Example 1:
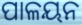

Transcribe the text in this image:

ପାଳୟନ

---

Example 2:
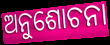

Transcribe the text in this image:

ଅନୁଶୋଚନା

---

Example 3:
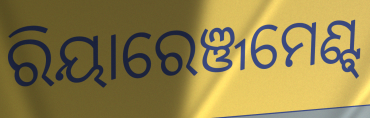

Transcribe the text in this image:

ରିୟାରେଞ୍ଜମେଣ୍ଟ୍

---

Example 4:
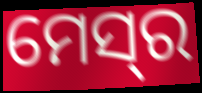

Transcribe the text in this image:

ମେସ୍‍ର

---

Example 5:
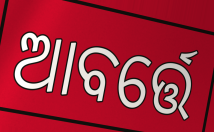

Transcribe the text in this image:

ଆବର୍ତ୍ତେ